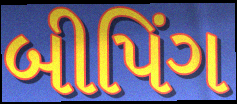
બીપિંગ